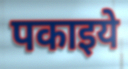
पकाइये